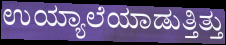
ಉಯ್ಯಾಲೆಯಾಡುತ್ತಿತ್ತು